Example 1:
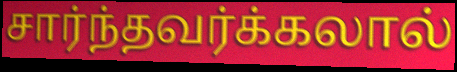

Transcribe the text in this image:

சார்ந்தவர்க்கலால்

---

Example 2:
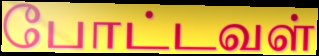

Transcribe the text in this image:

போட்டவள்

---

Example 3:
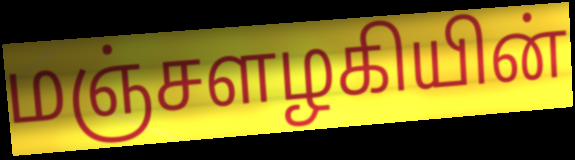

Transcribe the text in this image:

மஞ்சளழகியின்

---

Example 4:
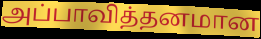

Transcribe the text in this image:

அப்பாவித்தனமான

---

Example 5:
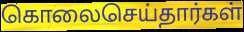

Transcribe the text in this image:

கொலைசெய்தார்கள்